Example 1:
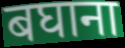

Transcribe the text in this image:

बघाना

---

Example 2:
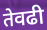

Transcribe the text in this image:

तेवढी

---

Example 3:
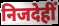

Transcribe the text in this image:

निजदेहीं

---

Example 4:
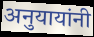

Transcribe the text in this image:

अनुयायांनी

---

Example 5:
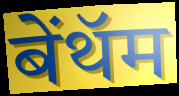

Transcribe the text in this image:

बेंथॅम